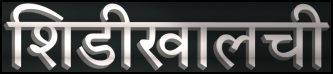
शिडीखालची